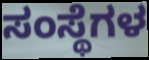
ಸಂಸ್ಥೆಗಳ